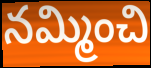
నమ్మించి